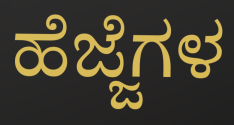
ಹೆಜ್ಜೆಗಳ